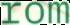
rom